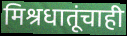
मिश्रधातूंचाही